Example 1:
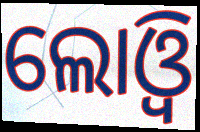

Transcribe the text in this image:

ଲୋଓ୍ବି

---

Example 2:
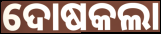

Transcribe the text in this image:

ଦୋଷକଲା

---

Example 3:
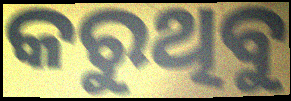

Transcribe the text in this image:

କରୁଥିବୁ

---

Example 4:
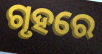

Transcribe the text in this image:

ଗୃହରେ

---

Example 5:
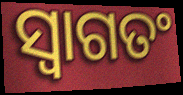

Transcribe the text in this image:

ସ୍ୱାଗତଂ